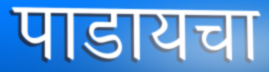
पाडायचा